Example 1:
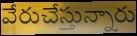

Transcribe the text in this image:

వేరుచేస్తున్నారు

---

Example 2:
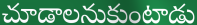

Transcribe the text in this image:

చూడాలనుకుంటాడు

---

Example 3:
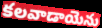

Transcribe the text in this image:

కలవాడాయెను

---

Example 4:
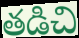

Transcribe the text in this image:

తడిచి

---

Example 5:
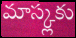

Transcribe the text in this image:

మాస్క్లకు